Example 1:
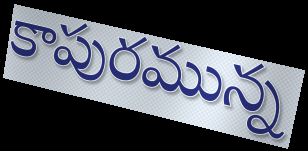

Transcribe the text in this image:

కాపురమున్న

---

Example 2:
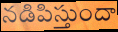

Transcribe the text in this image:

నడిపిస్తుందా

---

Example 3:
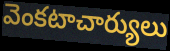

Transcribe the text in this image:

వెంకటాచార్యులు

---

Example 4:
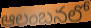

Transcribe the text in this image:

ఆలంబనలో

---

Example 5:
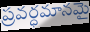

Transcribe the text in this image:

ప్రవర్ధమానమై